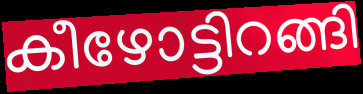
കീഴോട്ടിറങ്ങി